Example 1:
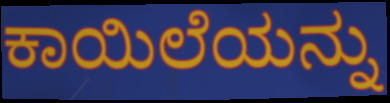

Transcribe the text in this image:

ಕಾಯಿಲೆಯನ್ನು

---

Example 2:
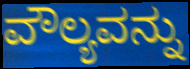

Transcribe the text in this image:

ವೌಲ್ಯವನ್ನು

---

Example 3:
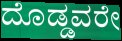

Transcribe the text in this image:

ದೊಡ್ಡವರೇ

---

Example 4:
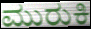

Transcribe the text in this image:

ಮುರುಕಿ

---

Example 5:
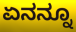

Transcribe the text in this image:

ಏನನ್ನೂ